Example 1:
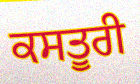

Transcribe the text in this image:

ਕਸਤੂਰੀ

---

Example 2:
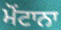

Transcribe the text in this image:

ਮੋਂਟਾਨਾ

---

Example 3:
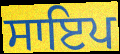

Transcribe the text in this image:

ਸਾਇਪ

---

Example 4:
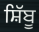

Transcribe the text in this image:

ਸ਼ਿੱਬੂ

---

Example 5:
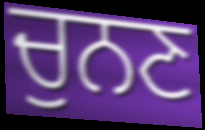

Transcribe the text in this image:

ਚੁਨਣ